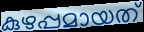
കുഴപ്പമായത്